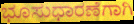
ಭೂಸುಧಾರಣೆಗಾಗಿ